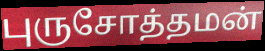
புருசோத்தமன்